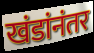
खंडांनंतर